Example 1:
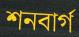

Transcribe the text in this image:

শনবার্গ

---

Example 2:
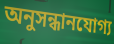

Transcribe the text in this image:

অনুসন্ধানযোগ্য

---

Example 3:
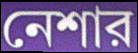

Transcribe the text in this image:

নেশার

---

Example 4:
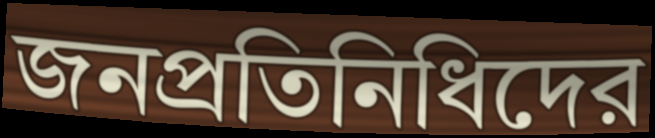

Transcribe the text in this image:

জনপ্রতিনিধিদের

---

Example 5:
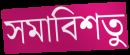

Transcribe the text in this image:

সমাবিশতু